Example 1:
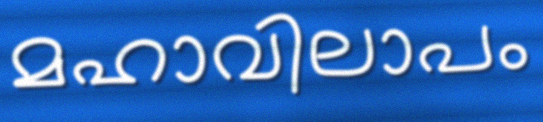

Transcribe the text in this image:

മഹാവിലാപം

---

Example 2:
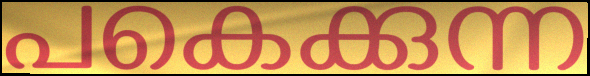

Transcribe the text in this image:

പകെക്കുന്ന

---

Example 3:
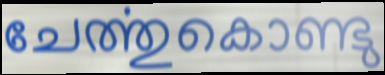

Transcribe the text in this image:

ചേൎത്തുകൊണ്ടു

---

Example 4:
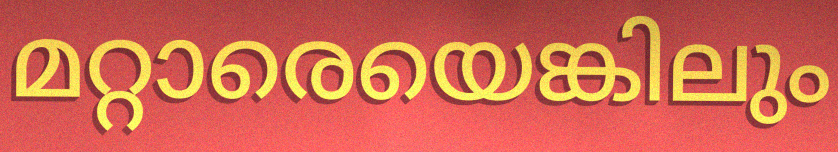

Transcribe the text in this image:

മറ്റാരെയെങ്കിലും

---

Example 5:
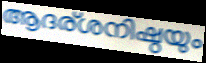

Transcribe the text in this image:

ആദര്ശനിഷ്ഠയും